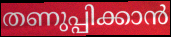
തണുപ്പിക്കാൻ